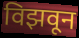
विझवून